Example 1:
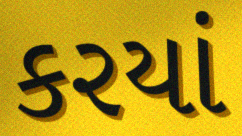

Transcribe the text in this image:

કરયાં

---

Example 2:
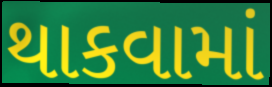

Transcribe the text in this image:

થાકવામાં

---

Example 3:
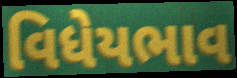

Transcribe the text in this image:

વિધેયભાવ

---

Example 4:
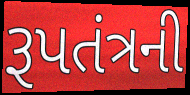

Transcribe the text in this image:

રૂપતંત્રની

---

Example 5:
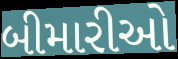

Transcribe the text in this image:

બીમારીઓ